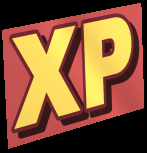
XP